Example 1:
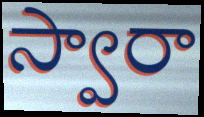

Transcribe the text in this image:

స్వారా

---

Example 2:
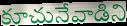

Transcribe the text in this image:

కూచునేవాడిని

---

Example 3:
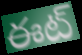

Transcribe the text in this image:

ఈట్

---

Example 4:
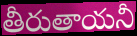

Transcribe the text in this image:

తీరుతాయనీ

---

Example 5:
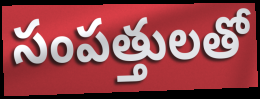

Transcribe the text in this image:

సంపత్తులతో